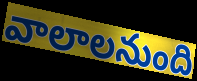
వాలాలనుంది